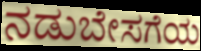
ನಡುಬೇಸಗೆಯ